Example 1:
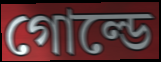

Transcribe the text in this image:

গোল্ডে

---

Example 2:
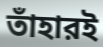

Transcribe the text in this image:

তাঁহারই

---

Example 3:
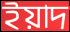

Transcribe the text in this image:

ইয়াদ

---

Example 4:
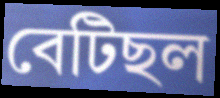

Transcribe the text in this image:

বেটিছল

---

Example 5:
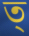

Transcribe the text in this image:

ত্